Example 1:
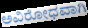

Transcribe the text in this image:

ಅವಿರೋಧವಾಗಿ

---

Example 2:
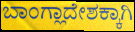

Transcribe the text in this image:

ಬಾಂಗ್ಲಾದೇಶಕ್ಕಾಗಿ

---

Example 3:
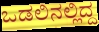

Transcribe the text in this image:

ಒಡಲಿನಲ್ಲಿದ್ದ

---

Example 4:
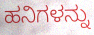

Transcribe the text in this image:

ಹನಿಗಳನ್ನು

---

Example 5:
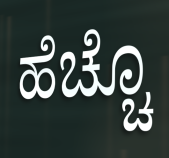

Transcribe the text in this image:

ಹೆಚ್ಚೊ